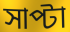
সাপ্টা